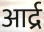
आर्द्र